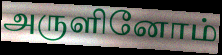
அருளினோம்